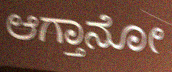
ಆಗ್ತಾನೋ